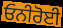
ਓਨੀਰੋਈ